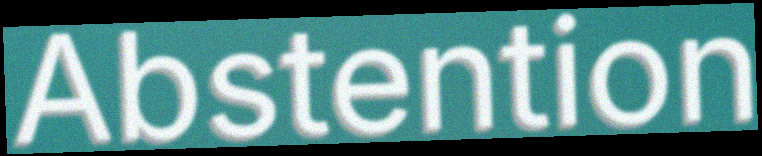
Abstention